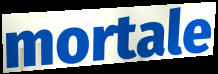
mortale